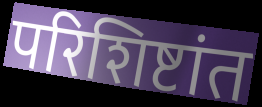
परिशिष्टांत